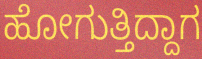
ಹೋಗುತ್ತಿದ್ದಾಗ